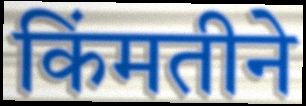
किंमतीने